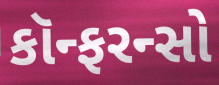
કૉન્ફરન્સો